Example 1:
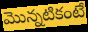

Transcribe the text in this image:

మొన్నటికంటే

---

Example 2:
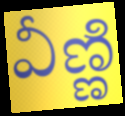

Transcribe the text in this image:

వీణ్ణి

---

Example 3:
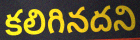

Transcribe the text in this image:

కలిగినదని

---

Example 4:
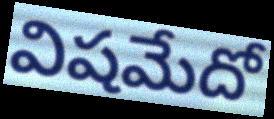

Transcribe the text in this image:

విషమేదో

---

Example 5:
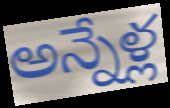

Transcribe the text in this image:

అన్నేళ్ల